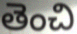
తెంచి